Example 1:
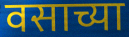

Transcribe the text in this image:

वसाच्या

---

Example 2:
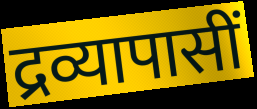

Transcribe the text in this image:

द्रव्यापासीं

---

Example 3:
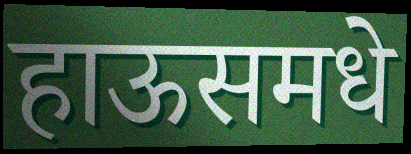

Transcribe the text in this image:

हाऊसमधे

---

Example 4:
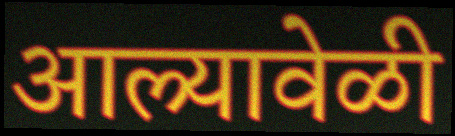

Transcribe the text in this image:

आल्यावेळी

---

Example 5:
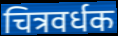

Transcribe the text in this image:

चित्रवर्धक